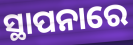
ସ୍ଥାପନାରେ